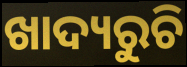
ଖାଦ୍ୟରୁଚି